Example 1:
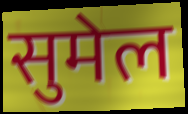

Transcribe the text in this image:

सुमेल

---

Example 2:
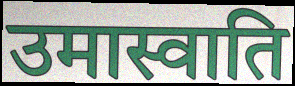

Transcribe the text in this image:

उमास्वाति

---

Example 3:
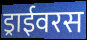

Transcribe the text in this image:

ड्राईवरस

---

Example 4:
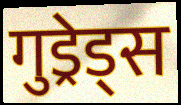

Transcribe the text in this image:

गुड्रेड्स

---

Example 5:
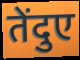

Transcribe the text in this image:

तेंदुए